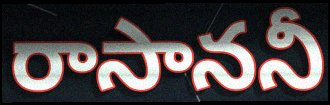
రాసాననీ